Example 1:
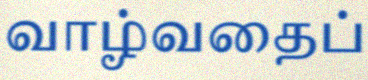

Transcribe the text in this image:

வாழ்வதைப்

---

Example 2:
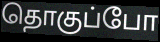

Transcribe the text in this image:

தொகுப்போ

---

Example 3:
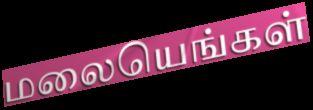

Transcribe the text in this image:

மலையெங்கள்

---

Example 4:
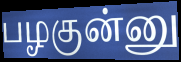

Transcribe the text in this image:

பழகுன்னு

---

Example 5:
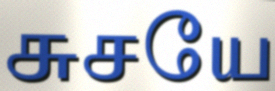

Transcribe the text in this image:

சுசயே